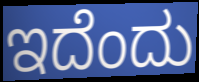
ಇದೆಂದು